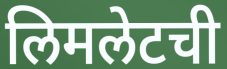
लिमलेटची